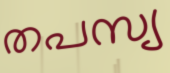
തപസ്യ